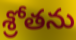
శ్రోతను